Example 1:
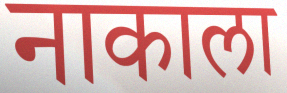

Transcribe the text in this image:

नाकाला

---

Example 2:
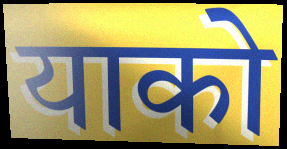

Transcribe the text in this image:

याको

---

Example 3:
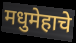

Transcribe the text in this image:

मधुमेहाचे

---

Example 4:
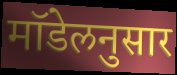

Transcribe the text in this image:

मॉडेलनुसार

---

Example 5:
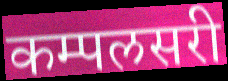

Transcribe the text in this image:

कम्पलसरी